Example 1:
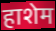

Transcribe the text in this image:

हाशेम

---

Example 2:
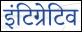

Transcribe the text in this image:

इंटिग्रेटिव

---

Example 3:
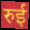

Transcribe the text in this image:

रुई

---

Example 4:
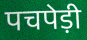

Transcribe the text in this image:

पचपेड़ी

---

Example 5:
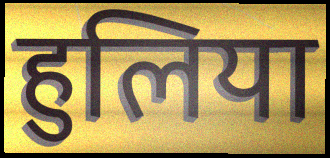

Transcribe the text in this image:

हुलिया